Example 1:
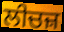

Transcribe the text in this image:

ਲੀਚਜ਼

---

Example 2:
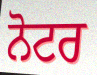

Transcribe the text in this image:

ਨੋਟਰ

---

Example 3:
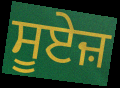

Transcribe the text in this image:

ਸੂਏਜ਼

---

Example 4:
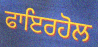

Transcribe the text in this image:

ਫਾਇਰਹੋਲ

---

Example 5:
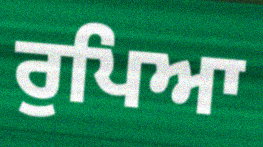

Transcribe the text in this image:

ਰੁਪਿਆ